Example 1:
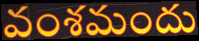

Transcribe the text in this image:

వంశమందు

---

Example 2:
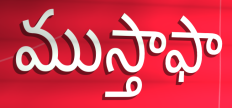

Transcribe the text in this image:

ముస్తాఫా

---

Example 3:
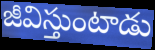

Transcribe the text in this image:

జీవిస్తుంటాడు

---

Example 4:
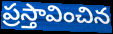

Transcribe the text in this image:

ప్రస్తావించిన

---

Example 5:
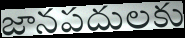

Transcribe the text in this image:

జానపదులకు